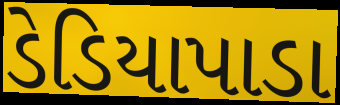
ડેડિયાપાડા